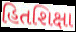
હિતશિક્ષા